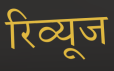
रिव्यूज